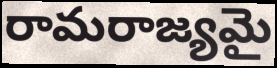
రామరాజ్యమై